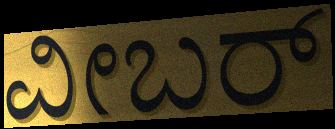
ವೀಬರ್